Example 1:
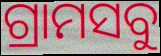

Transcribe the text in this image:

ଗ୍ରାମସବୁ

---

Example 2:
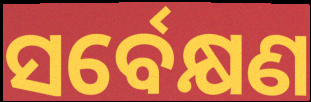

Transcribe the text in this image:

ସର୍ବେକ୍ଷଣ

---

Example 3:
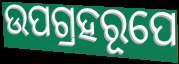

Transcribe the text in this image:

ଉପଗ୍ରହରୂପେ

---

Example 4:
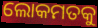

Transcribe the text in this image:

ଲୋକମତକୁ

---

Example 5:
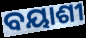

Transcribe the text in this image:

ବୟାଶୀ